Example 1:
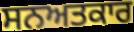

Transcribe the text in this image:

ਸਨਅਤਕਾਰ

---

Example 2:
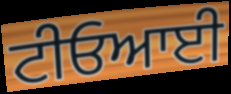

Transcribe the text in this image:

ਟੀਓਆਈ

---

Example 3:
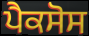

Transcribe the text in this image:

ਪੈਕਸੋਸ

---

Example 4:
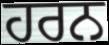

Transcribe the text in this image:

ਹਰਨ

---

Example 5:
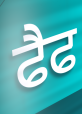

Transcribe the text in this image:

ਫੈਫ